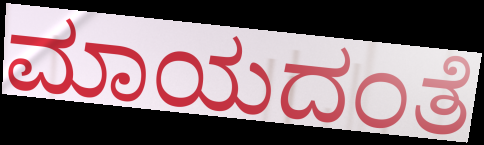
ಮಾಯದಂತೆ